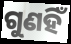
ଗୁଣହିଁ